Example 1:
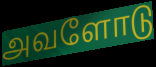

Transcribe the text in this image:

அவளோடு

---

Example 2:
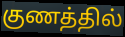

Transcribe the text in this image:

குணத்தில்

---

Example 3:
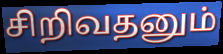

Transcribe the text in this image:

சிறிவதனும்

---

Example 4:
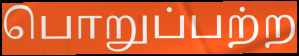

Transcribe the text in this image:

பொறுப்பற்ற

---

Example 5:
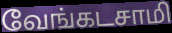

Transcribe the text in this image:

வேங்கடசாமி